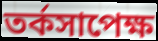
তর্কসাপেক্ষ